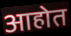
आहोत